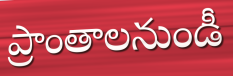
ప్రాంతాలనుండీ